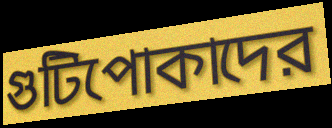
গুটিপোকাদের